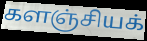
களஞ்சியக்